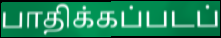
பாதிக்கப்படப்